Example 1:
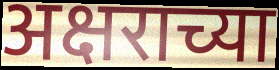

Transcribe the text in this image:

अक्षराच्या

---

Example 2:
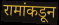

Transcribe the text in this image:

रामांकडून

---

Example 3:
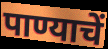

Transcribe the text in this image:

पाण्याचें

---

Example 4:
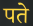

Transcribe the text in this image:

पते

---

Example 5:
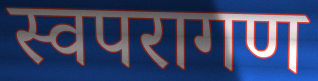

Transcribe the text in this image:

स्वपरागण